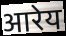
आरेय